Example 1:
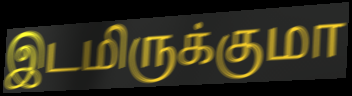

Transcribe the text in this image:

இடமிருக்குமா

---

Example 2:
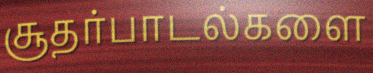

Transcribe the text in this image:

சூதர்பாடல்களை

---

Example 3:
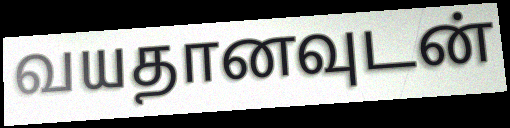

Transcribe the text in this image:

வயதானவுடன்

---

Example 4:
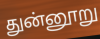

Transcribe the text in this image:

துன்னூறு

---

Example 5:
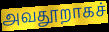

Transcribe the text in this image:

அவதூறாகச்